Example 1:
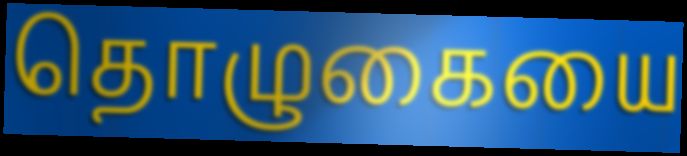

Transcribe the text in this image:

தொழுகையை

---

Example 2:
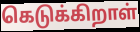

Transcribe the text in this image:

கெடுக்கிறாள்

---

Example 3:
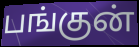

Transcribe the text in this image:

பங்குன்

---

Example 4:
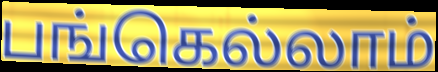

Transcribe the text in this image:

பங்கெல்லாம்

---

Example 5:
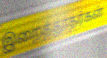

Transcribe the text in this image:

இறைத்தூதர்கள்